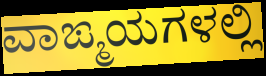
ವಾಙ್ಮಯಗಳಲ್ಲಿ